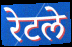
रेटले